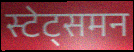
स्टेट्समन